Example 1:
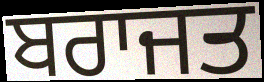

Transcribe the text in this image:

ਬਰਾਜਤ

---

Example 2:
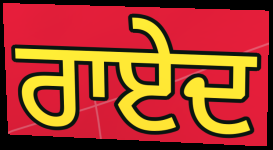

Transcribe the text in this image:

ਰਾਏਦ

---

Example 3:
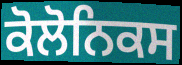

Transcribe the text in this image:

ਕੋਲੋਨਿਕਸ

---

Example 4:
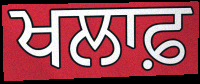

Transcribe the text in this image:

ਖਲਾਫ਼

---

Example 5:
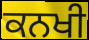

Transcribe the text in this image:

ਕਨਖੀ